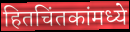
हितचिंतकांमध्ये